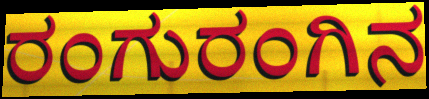
ರಂಗುರಂಗಿನ